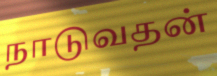
நாடுவதன்